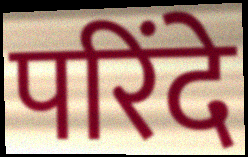
परिंदे